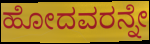
ಹೋದವರನ್ನೇ